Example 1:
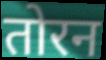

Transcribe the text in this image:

तोरन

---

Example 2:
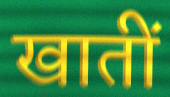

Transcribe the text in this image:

खातीं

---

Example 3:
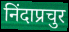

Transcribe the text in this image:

निंदाप्रचुर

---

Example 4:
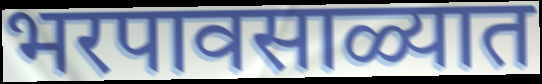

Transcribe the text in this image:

भरपावसाळ्यात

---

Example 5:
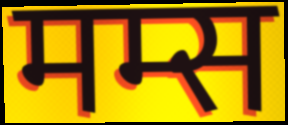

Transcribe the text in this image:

मम्स